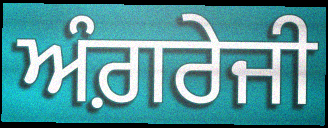
ਅੰਗ਼ਰੇਜੀ